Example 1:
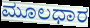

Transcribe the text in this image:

ಮೂಲಧಾರ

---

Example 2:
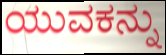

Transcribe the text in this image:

ಯುವಕನ್ನು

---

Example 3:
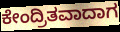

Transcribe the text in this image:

ಕೇಂದ್ರಿತವಾದಾಗ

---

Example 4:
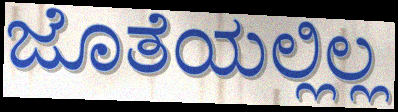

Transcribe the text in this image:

ಜೊತೆಯಲ್ಲಿಲ್ಲ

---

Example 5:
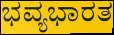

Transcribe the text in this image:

ಭವ್ಯಭಾರತ